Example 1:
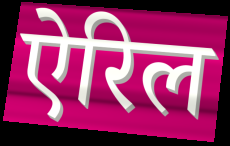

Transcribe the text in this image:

ऐरिल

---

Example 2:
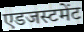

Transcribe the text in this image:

एडजस्‍टमेंट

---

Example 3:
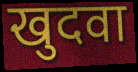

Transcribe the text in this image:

खुदवा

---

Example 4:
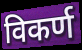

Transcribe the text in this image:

विकर्ण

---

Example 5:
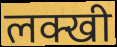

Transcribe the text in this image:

लक्खी